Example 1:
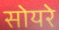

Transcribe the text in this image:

सोयरे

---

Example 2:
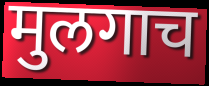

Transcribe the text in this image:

मुलगाच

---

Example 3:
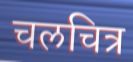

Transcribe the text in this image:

चलचित्र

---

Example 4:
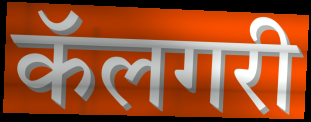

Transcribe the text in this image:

कॅलगरी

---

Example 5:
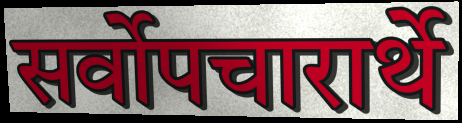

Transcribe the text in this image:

सर्वोपचारार्थे